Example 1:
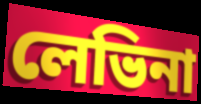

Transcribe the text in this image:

লেভিনা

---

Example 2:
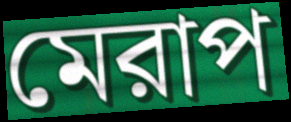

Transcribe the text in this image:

মেরাপ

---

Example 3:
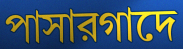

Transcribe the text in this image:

পাসারগাদে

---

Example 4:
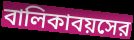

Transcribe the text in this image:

বালিকাবয়সের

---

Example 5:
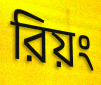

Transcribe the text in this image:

রিয়ং